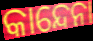
କାନ୍ଦେନା